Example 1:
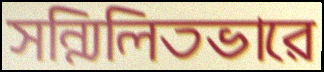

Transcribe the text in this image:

সন্মিলিতভাৱে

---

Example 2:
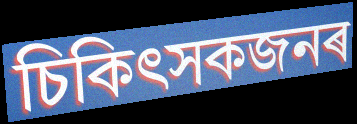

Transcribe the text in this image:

চিকিৎসকজনৰ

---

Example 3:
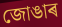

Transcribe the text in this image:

জোঙাৰ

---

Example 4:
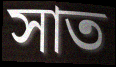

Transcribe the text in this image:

সাত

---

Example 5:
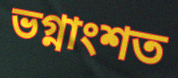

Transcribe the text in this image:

ভগ্নাংশত